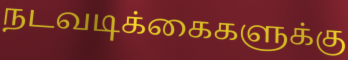
நடவடிக்கைகளுக்கு